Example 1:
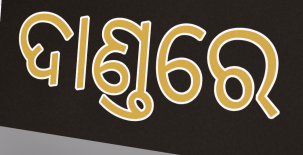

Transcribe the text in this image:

ଦାଣ୍ଡରେ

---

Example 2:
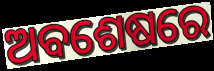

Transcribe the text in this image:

ଅବଶେଷରେ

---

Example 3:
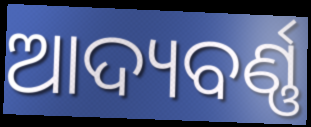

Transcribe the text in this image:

ଆଦ୍ୟବର୍ଣ୍ଣ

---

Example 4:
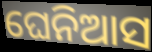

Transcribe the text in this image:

ଘେନିଆସ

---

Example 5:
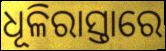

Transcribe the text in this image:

ଧୂଳିରାସ୍ତାରେ